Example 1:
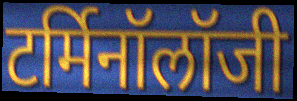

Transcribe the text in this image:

टर्मिनॉलॉजी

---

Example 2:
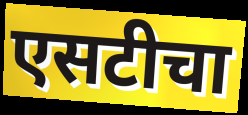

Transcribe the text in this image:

एसटीचा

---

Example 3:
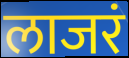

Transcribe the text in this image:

लाजरं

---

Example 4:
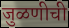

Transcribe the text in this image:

जुळणीची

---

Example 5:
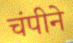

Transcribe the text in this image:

चंपीने